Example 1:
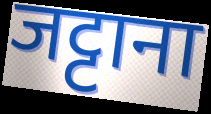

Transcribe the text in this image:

जट्टाना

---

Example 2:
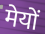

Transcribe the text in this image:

मेयों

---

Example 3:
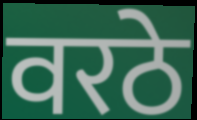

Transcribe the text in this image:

वरठे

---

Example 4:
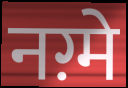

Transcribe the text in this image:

नग़्मे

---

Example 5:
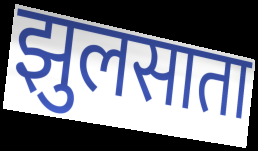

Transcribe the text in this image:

झुलसाता